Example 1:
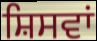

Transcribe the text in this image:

ਸ਼ਿਸਵਾਂ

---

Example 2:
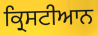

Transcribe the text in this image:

ਕ੍ਰਿਸਟੀਆਨ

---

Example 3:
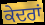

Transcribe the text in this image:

ਕੇਦਰਾਂ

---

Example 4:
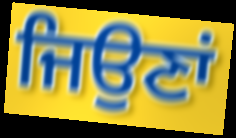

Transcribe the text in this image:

ਜਿਉਣਾਂ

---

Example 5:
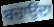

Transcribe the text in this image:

ਬਚਾਉਂਦਾ